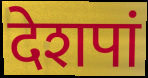
देशपां